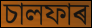
চালফাৰ